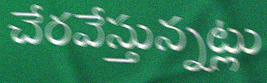
చేరవేస్తున్నట్లు